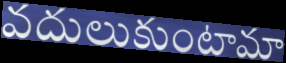
వదులుకుంటామా